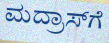
ಮದ್ರಾಸ್‍ಗೆ